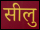
सीलु